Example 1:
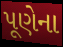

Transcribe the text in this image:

પૂણેના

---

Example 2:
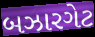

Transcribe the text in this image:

બઝારગેટ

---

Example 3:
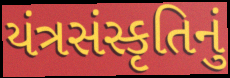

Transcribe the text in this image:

યંત્રસંસ્કૃતિનું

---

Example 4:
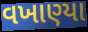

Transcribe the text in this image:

વખાણ્યા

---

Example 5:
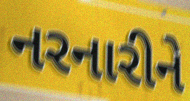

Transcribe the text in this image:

નરનારીને